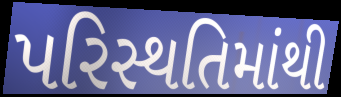
પરિસ્થતિમાંથી